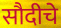
सौदीचे